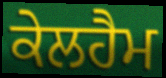
ਕੇਲਹੈਮ